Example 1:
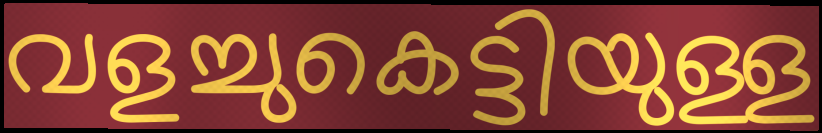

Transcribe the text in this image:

വളച്ചുകെട്ടിയുള്ള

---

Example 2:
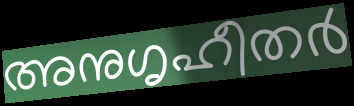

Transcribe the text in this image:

അനുഗൃഹീതർ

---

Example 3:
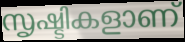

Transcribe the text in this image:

സൃഷ്ടികളാണ്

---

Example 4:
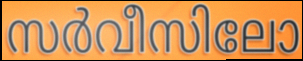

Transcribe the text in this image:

സർവീസിലോ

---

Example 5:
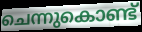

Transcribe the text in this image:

ചെന്നുകൊണ്ട്